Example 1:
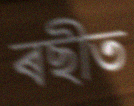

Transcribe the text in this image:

ৰছীত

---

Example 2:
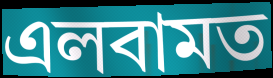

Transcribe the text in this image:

এলবামত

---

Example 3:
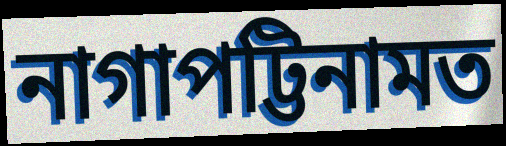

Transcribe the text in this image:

নাগাপট্টিনামত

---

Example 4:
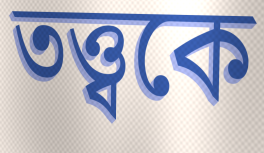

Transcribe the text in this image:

তত্ত্বকে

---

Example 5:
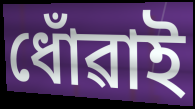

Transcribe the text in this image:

ধোঁৱাই